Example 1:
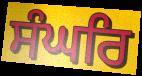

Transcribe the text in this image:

ਸੰਘਰਿ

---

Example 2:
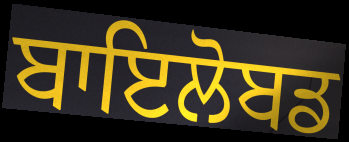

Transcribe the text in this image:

ਬਾਇਲੋਬਡ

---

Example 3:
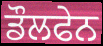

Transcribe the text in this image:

ਡੌਲਫੇਨ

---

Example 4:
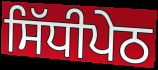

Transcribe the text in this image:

ਸਿੱਧੀਪੇਠ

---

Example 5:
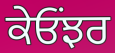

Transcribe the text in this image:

ਕੇਓਂਝਰ